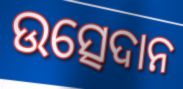
ଉତ୍ସେଦାନ